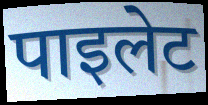
पाइलेट